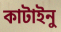
কাটাইনু